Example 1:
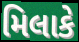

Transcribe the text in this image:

મિલાકે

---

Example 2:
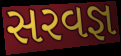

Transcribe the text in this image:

સરવજ્ઞ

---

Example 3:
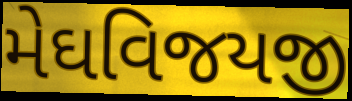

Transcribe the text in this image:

મેઘવિજયજી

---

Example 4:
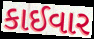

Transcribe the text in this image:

કાઈવાર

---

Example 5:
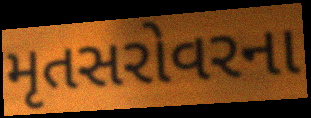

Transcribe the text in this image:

મૃતસરોવરના